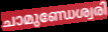
ചാമുണ്ഡേശ്വരി